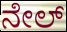
ನೇಲ್